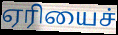
ஏரியைச்